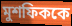
মুশফিককে